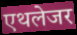
एथलेजर